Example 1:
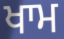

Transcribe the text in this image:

ਖਾਮ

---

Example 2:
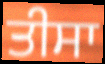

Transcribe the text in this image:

ਤੀਸਾ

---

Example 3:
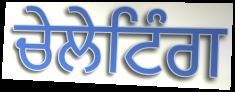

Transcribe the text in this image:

ਚੇਲੇਟਿੰਗ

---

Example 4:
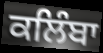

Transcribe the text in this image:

ਕਲਿੰਬਾ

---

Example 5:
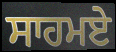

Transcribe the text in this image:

ਸਾਹਮਏ